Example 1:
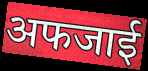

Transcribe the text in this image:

अफजाई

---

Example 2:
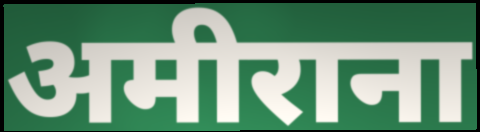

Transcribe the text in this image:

अमीराना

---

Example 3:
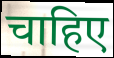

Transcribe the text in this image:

चाहिए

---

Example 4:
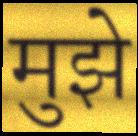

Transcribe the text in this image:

मुझे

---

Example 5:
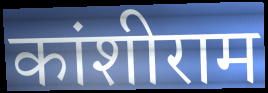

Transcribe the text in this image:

कांशीराम